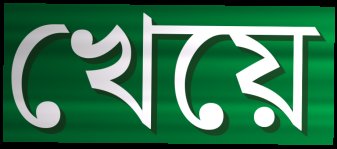
খেয়ে